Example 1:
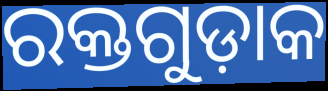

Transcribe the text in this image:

ରକ୍ତଗୁଡ଼ାକ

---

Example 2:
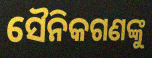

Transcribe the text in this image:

ସୈନିକଗଣଙ୍କୁ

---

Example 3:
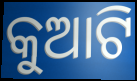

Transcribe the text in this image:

କୁଆଟି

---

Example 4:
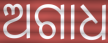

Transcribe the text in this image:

ଅଗାଧ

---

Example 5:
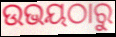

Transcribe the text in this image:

ଉଭୟଠାରୁ